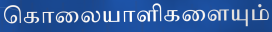
கொலையாளிகளையும்